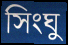
সিংঘু